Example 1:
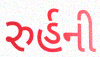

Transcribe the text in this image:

રુર્હની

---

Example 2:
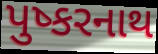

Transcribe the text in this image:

પુષ્કરનાથ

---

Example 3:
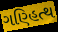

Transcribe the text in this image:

ગણ્હિત્થ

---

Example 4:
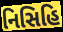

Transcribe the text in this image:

નિસિહિ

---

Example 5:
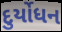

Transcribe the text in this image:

દુર્યોધન